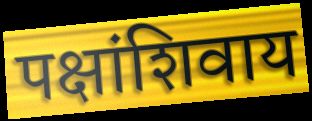
पक्षांशिवाय